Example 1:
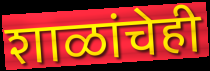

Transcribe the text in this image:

शाळांचेही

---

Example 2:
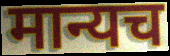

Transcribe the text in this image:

मान्यच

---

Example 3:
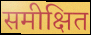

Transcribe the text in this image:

समीक्षित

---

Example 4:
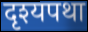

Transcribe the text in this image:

दृश्यपथा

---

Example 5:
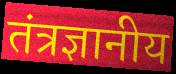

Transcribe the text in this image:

तंत्रज्ञानीय